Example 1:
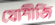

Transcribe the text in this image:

যোশীজি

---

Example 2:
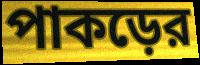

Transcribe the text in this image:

পাকড়ের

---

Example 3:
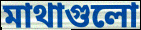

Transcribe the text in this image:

মাথাগুলো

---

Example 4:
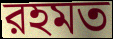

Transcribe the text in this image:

রহমত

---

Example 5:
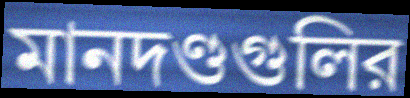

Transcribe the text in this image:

মানদণ্ডগুলির